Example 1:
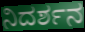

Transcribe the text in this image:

ನಿದರ್ಶನ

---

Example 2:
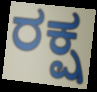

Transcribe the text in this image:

ರಕ್ಷ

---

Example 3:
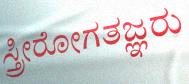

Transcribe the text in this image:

ಸ್ತ್ರೀರೋಗತಜ್ಞರು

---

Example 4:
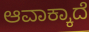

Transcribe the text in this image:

ಆವಾಕ್ಕಾದೆ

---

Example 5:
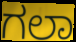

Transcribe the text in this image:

ಗಲಾ